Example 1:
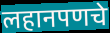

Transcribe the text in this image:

लहानपणचे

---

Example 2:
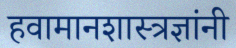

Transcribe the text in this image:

हवामानशास्त्रज्ञांनी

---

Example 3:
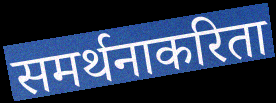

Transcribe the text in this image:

समर्थनाकरिता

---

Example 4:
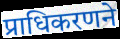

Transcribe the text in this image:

प्राधिकरणने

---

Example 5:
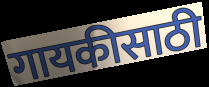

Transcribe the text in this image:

गायकीसाठी